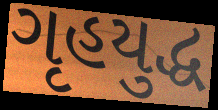
ગૃહયુદ્ધ